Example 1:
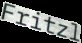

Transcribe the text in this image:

Fritzl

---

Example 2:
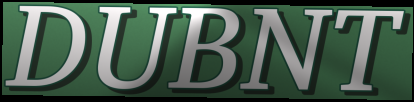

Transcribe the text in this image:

DUBNT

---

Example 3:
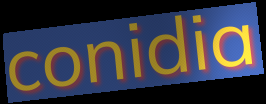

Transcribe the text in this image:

conidia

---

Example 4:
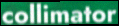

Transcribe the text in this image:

collimator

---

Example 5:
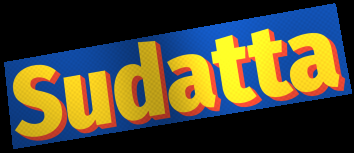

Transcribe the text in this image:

Sudatta